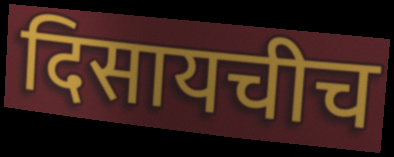
दिसायचीच